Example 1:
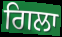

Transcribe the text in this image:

ਗਿਲਾ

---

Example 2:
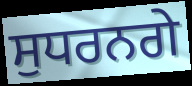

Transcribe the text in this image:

ਸੁਧਰਨਗੇ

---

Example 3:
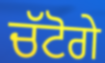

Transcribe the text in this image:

ਚੱਟੋਗੇ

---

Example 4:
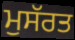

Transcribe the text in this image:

ਮੁਸੱਰਤ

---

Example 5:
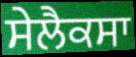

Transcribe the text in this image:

ਸੇਲੈਕਸਾ